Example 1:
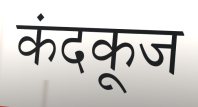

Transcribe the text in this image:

कंदकूज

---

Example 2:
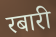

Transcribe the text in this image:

रबारी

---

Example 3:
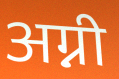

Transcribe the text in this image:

अग्नी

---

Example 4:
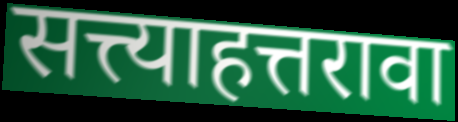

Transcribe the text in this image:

सत्त्याहत्तरावा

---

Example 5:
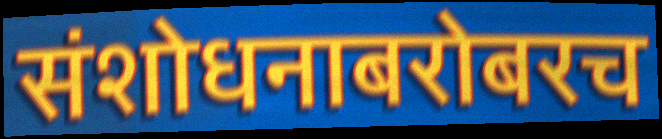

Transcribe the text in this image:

संशोधनाबरोबरच